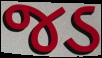
જડ